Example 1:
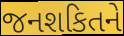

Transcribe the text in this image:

જનશકિતને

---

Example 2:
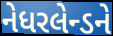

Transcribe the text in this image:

નેધરલેન્ડને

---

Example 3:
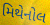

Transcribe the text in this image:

મિથેનોલ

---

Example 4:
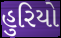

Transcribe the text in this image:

હુરિયો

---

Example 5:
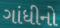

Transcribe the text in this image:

ગાંધીનો